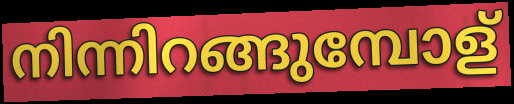
നിന്നിറങ്ങുമ്പോള്